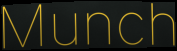
Munch